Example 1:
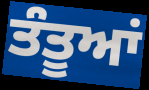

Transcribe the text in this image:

ਤੰਤੂਆਂ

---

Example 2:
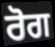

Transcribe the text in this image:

ਰੋਗ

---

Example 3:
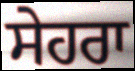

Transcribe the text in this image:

ਸੇਹਰਾ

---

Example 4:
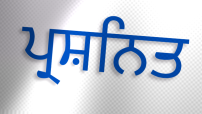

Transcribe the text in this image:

ਪ੍ਰਸ਼ਨਿਤ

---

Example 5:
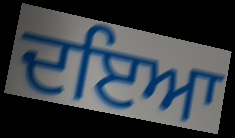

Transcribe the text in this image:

ਦਇਆ